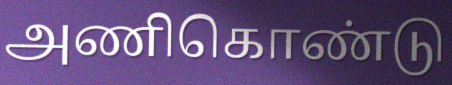
அணிகொண்டு